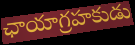
ఛాయాగ్రహకుడు